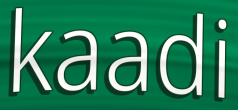
kaadi